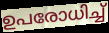
ഉപരോധിച്ച്